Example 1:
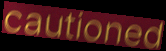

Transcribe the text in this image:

cautioned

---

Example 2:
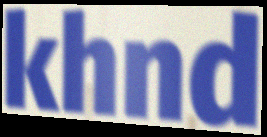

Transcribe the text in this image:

khnd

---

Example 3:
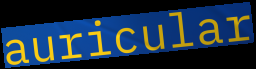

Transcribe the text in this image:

auricular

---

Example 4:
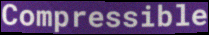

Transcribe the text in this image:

Compressible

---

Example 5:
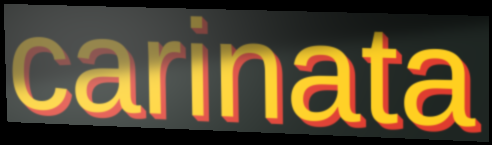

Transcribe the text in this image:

carinata